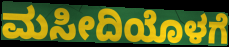
ಮಸೀದಿಯೊಳಗೆ